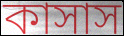
কাসাস